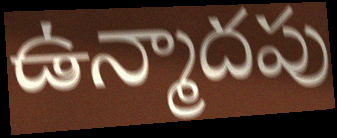
ఉన్మాదపు